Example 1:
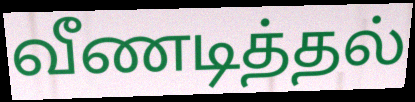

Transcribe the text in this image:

வீணடித்தல்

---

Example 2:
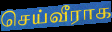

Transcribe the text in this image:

செய்வீராக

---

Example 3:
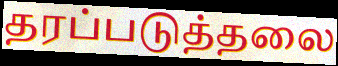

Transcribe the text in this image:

தரப்படுத்தலை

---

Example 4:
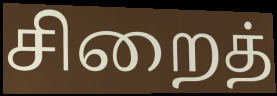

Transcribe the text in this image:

சிறைத்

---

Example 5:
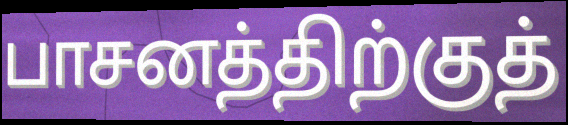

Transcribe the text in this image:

பாசனத்திற்குத்